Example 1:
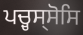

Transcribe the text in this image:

ਪਚ੍ਚਸ੍ਸੋਸਿ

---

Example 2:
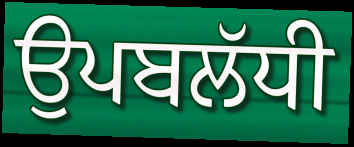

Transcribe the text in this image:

ਉਪਬਲੱਧੀ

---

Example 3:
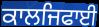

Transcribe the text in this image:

ਕਾਲਜਿਫਾਈ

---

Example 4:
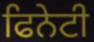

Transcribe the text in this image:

ਫਿਨੇਟੀ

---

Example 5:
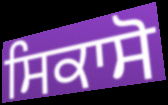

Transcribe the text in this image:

ਸਿਕਾਸੋ